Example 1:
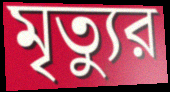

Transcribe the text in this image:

মৃত্যুর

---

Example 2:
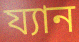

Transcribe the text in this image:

য্যান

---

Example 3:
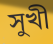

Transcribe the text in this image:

সুখী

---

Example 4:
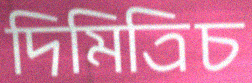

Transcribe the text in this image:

দিমিত্রিচ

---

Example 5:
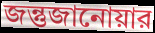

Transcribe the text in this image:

জন্তুজানোয়ার